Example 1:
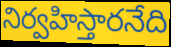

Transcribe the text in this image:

నిర్వహిస్తారనేది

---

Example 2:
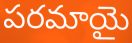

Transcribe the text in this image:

పరమాయై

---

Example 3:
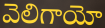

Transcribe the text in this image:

వెలిగాయో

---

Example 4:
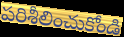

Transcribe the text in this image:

పరిశీలించుకోండి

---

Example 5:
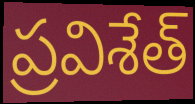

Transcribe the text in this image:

ప్రవిశేత్